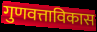
गुणवत्ताविकास